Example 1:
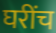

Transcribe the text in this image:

घरींच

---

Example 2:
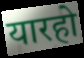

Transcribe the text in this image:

यारहो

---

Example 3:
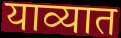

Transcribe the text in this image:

याव्यात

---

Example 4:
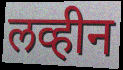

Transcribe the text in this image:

लव्हीन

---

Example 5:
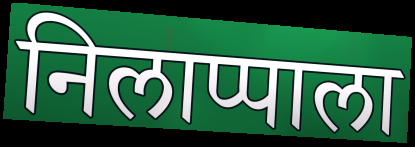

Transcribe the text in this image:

निलाप्पाला